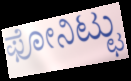
ಫೋನಿಟ್ಟು